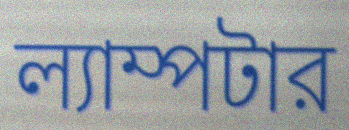
ল্যাম্পটার